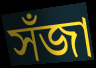
সঁজা